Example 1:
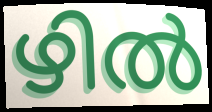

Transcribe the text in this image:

ഴിൽ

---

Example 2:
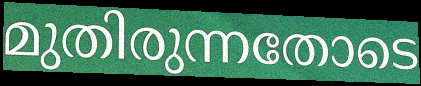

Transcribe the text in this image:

മുതിരുന്നതോടെ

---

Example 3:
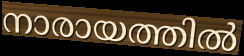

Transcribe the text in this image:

നാരായത്തിൽ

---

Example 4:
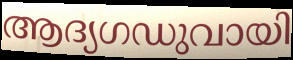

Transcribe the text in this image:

ആദ്യഗഡുവായി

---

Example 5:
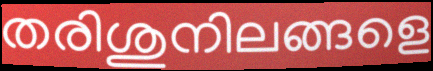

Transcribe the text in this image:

തരിശുനിലങ്ങളെ